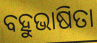
ବହୁଭାଷିତା